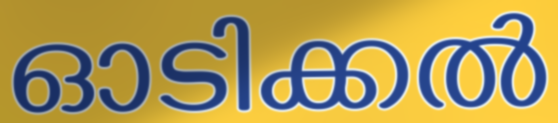
ഓടിക്കൽ